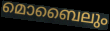
മൊബൈലും